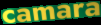
camara